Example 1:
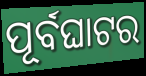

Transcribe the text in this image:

ପୂର୍ବଘାଟର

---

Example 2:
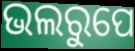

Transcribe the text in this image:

ଭଲରୁପେ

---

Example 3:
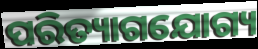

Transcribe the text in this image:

ପରିତ୍ୟାଗଯୋଗ୍ୟ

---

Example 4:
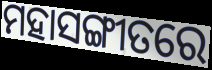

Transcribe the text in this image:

ମହାସଙ୍ଗୀତରେ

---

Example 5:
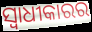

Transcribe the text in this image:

ସ୍ୱାଧୀକାରର